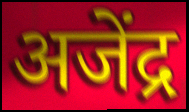
अजेंद्र